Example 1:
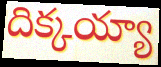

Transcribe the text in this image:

దిక్కయ్యా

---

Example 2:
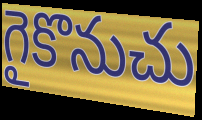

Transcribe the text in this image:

గైకొనుచు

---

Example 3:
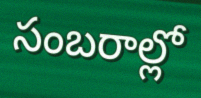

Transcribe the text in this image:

సంబరాల్లో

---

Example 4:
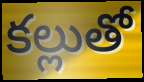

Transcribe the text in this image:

కల్లుతో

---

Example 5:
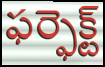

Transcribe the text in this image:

ఫర్ఫెక్ట్